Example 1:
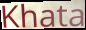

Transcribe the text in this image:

Khata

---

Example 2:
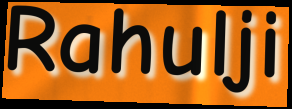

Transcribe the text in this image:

Rahulji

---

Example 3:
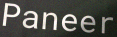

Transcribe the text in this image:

Paneer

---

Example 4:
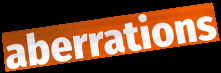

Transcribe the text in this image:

aberrations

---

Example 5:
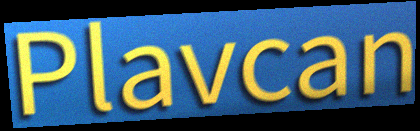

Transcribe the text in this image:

Plavcan